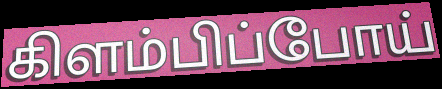
கிளம்பிப்போய்